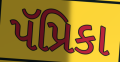
પૅપ્રિકા